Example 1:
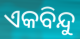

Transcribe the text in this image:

ଏକବିନ୍ଦୁ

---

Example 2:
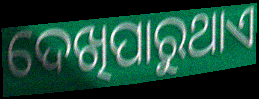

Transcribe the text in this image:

ଦେଖିପାରୁଥାଏ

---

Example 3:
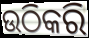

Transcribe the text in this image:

ଉଠିକରି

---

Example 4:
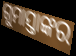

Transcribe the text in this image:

ଗୁମାସ୍ତାଙ୍କର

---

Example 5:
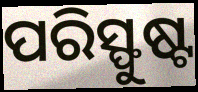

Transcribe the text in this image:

ପରିସ୍ଫୁଷ୍ଟ